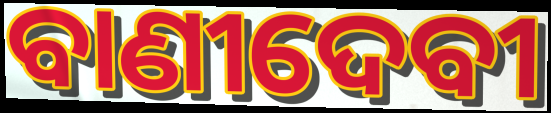
ବାଣୀଦେବୀ